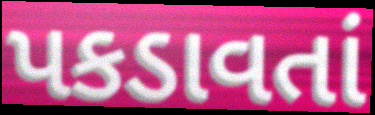
પકડાવતાં